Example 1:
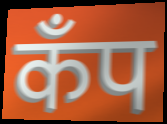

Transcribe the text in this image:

कॅंप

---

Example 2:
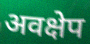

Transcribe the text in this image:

अवक्षेप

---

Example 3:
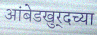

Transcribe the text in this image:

आंबेडखुर्दच्या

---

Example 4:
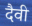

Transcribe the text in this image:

दैवी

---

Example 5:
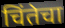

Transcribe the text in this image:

चिंतेचा